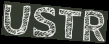
USTR